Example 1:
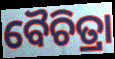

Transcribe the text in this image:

ବୈଚିତ୍ରା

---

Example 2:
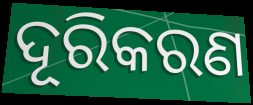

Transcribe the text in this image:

ଦୂରିକରଣ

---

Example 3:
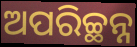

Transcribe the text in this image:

ଅପରିଚ୍ଛନ୍ନ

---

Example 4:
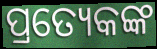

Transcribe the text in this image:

ପ୍ରତ୍ଯେକଙ୍କ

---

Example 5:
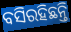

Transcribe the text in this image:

ବସିରହିଛନ୍ତି